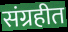
संग्रहीत